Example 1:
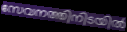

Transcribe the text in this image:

സേവനത്തിനിടയിൽ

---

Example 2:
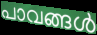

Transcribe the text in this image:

പാവങ്ങൾ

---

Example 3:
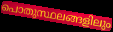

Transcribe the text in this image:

പൊതുസ്ഥലങ്ങളിലും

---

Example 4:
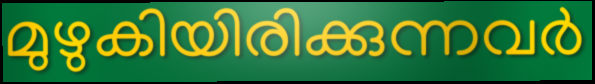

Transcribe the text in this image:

മുഴുകിയിരിക്കുന്നവർ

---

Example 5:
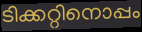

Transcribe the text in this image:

ടിക്കറ്റിനൊപ്പം